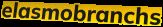
elasmobranchs